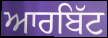
ਆਰਬਿੱਟ